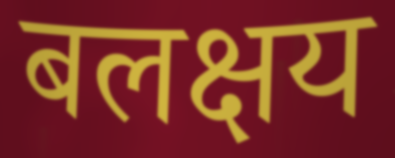
बलक्षय